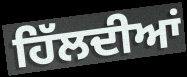
ਹਿੱਲਦੀਆਂ